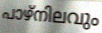
പാഴ്നിലവും